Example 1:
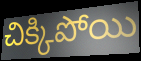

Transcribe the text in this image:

చిక్కిపోయి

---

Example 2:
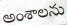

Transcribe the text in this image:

అంశాలను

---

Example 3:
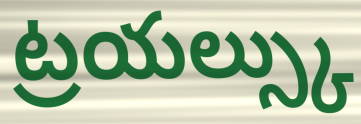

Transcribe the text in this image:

ట్రయల్స్కు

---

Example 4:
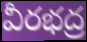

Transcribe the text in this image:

వీరభద్ర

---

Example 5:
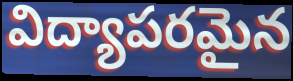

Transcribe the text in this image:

విద్యాపరమైన